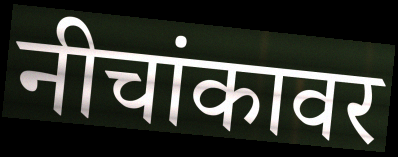
नीचांकावर